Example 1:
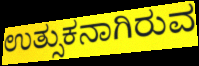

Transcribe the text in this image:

ಉತ್ಸುಕನಾಗಿರುವ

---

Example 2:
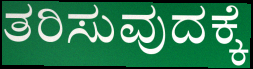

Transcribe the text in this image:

ತರಿಸುವುದಕ್ಕೆ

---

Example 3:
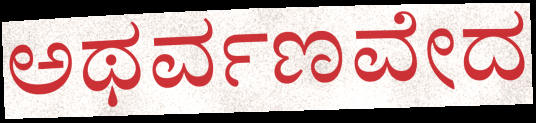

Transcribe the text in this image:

ಅಥರ್ವಣವೇದ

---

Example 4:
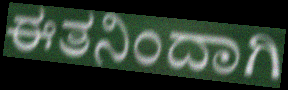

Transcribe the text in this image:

ಈತನಿಂದಾಗಿ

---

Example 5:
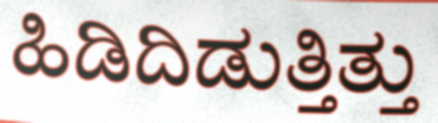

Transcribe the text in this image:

ಹಿಡಿದಿಡುತ್ತಿತ್ತು